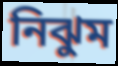
নিঝুম